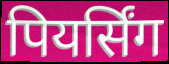
पियर्सिंग